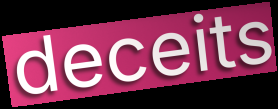
deceits